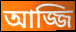
আজ্জি